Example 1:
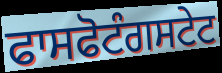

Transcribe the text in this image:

ਫਾਸਫੋਟੰਗਸਟੇਟ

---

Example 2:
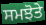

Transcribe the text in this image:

ਸਮਝੋਤੇ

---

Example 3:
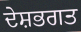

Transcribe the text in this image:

ਦੇਸ਼ਭਗਤ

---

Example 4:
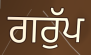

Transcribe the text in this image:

ਗਰੁੱਪ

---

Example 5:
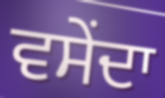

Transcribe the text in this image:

ਵਸੇਂਦਾ